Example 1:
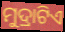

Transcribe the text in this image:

ମୁଦ୍ରାଟିଏ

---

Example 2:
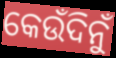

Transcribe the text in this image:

କେଉଁଦିନୁଁ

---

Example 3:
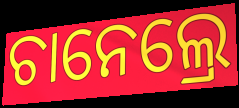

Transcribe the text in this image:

ଚାନେଲ୍ରେ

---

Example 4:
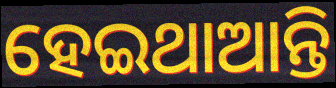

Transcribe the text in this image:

ହେଇଥାଆନ୍ତି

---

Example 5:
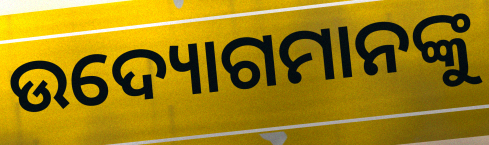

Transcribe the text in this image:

ଉଦ୍ୟୋଗମାନଙ୍କୁ